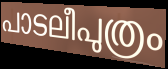
പാടലീപുത്രം